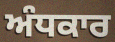
ਅੰਧਕਾਰ